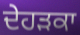
ਦੇਹੜਕਾ